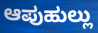
ಆಪುಹುಲ್ಲು